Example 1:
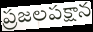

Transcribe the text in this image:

ప్రజలపక్షాన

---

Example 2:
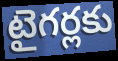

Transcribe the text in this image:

టైగర్లకు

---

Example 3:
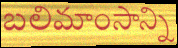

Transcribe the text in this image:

బలిమాంసాన్ని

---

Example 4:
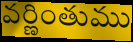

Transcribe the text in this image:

వర్ణింతుము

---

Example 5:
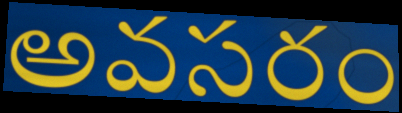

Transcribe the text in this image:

అవసరం